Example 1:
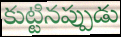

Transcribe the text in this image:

కుట్టినప్పుడు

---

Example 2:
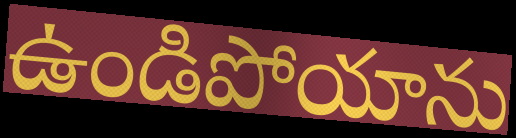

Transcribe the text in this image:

ఉండిపోయాను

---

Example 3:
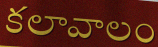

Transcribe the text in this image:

కలావాలం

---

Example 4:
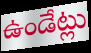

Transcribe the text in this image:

ఉండేట్లు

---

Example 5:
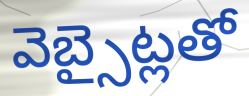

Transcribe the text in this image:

వెబ్సైట్లతో